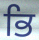
ਭਿ